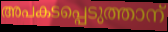
അപകടപ്പെടുത്താന്